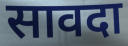
सावदा